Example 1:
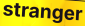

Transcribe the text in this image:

stranger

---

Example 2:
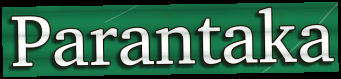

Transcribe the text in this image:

Parantaka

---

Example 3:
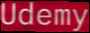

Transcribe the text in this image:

Udemy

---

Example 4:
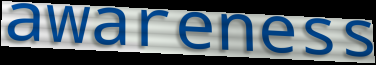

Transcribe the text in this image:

awareness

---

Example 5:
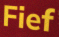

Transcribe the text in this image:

Fief